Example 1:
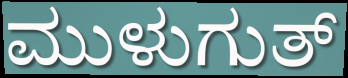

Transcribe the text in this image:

ಮುಳುಗುತ್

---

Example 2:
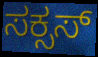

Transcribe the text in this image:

ಸಕ್ಸಸ್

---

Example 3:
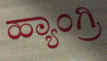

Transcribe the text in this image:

ಹ್ಯಾಂಗ್ರಿ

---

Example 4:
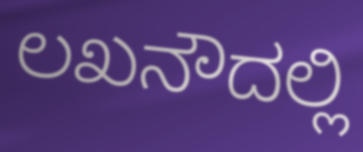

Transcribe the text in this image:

ಲಖನೌದಲ್ಲಿ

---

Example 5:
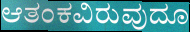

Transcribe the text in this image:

ಆತಂಕವಿರುವುದೂ